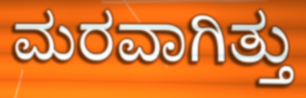
ಮರವಾಗಿತ್ತು